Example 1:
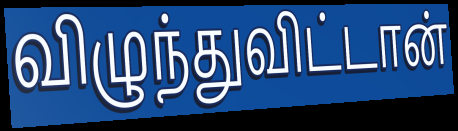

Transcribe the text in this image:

விழுந்துவிட்டான்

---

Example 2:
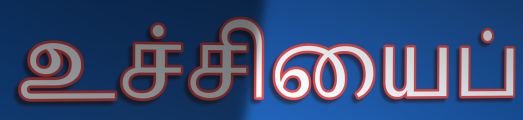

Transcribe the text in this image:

உச்சியைப்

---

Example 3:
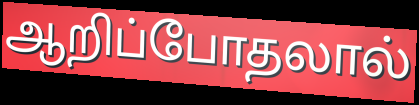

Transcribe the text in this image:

ஆறிப்போதலால்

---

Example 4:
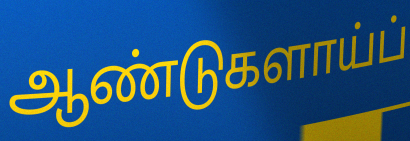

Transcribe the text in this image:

ஆண்டுகளாய்ப்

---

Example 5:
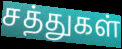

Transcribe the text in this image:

சத்துகள்